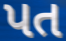
પત